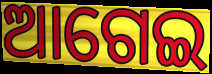
ଆଗେଇ